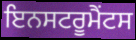
ਇਨਸਟਰੂਮੈਂਟਸ